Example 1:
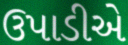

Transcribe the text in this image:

ઉપાડીએ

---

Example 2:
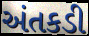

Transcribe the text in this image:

અંતકડી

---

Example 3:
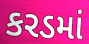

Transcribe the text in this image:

કરડમાં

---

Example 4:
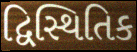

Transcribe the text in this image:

દ્વિસ્થિતિક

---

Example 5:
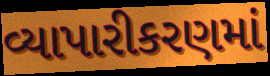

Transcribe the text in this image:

વ્યાપારીકરણમાં